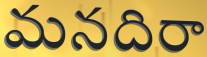
మనదిరా